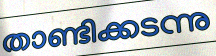
താണ്ടിക്കടന്നു